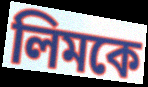
লিমকে